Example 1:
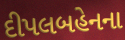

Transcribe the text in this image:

દીપલબહેનના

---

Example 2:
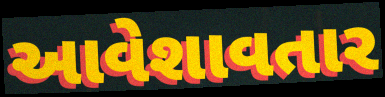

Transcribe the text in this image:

આવેશાવતાર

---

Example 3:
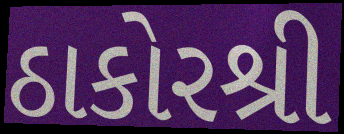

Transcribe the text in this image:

ઠાકોરશ્રી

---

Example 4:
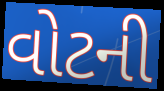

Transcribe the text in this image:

વોટની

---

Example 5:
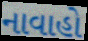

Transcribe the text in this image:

નાવાહો